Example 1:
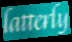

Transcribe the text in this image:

latterly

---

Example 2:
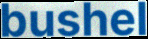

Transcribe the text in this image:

bushel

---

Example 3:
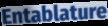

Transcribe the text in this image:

Entablature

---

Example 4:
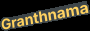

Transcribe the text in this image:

Granthnama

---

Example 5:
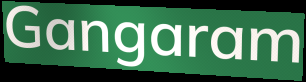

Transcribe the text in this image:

Gangaram